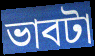
ভাবটা